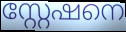
സ്റ്റേഷനെ